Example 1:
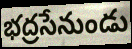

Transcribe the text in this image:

భద్రసేనుండు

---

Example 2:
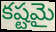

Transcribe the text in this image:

కష్టమై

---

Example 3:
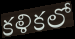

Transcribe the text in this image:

కళికలో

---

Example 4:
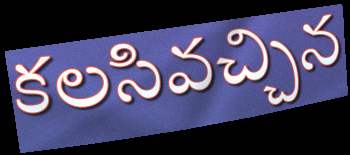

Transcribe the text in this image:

కలసివచ్చిన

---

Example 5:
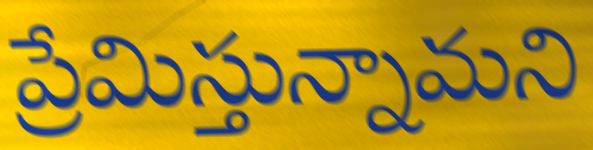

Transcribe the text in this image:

ప్రేమిస్తున్నామని